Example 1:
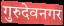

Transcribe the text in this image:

गुरुदेवनगर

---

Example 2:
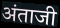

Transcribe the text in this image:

अंताजी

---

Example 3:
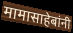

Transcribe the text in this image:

मामासाहेबांनी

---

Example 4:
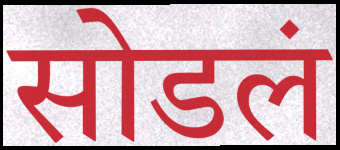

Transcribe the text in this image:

सोडलं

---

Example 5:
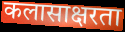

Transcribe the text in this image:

कलासाक्षरता